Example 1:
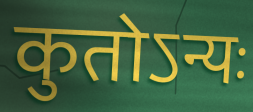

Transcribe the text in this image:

कुतोऽन्यः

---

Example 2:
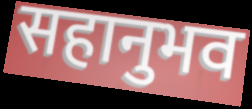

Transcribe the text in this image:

सहानुभव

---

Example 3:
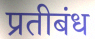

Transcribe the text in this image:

प्रतीबंध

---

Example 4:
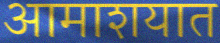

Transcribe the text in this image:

आमाशयात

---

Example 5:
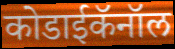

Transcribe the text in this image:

कोडाईकॅनॉल